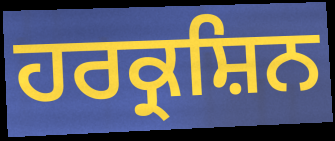
ਹਰਕ੍ਰਸ਼ਿਨ